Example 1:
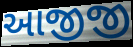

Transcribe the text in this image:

આજીજી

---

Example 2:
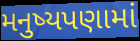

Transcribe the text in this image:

મનુષ્યપણામાં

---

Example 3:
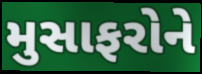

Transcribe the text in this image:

મુસાફરોને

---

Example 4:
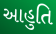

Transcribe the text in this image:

આહુતિ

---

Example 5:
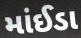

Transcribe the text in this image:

માંઈડા